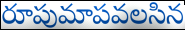
రూపుమాపవలసిన